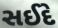
સઈદે